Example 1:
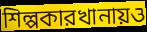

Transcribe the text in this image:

শিল্পকারখানায়ও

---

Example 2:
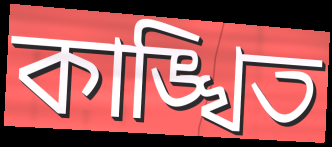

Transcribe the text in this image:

কাঙ্খিত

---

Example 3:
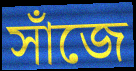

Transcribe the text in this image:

সাঁজে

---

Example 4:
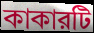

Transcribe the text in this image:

কাকারটি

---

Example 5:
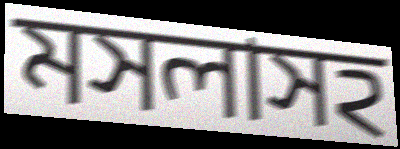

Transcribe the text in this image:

মসলাসহ